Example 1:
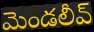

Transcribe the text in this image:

మెండలీవ్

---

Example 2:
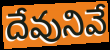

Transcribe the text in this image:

దేవునివే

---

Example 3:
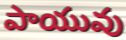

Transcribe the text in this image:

పాయువు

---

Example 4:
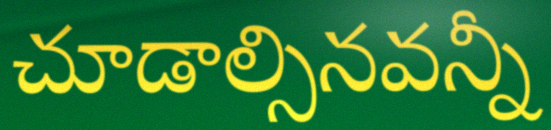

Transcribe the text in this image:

చూడాల్సినవన్నీ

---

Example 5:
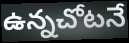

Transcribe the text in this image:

ఉన్నచోటనే